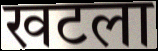
खटला